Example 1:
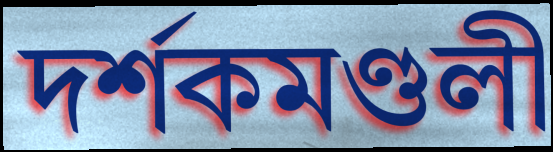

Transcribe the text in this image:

দর্শকমণ্ডলী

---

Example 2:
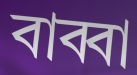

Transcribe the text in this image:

বাব্বা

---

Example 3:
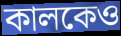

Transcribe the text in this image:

কালকেও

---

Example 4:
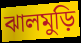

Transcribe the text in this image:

ঝালমুড়ি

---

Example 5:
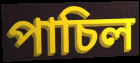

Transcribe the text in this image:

পাচিল